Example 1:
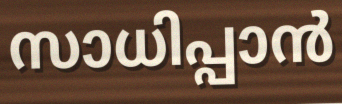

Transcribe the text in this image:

സാധിപ്പാൻ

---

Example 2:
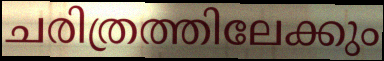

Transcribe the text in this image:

ചരിത്രത്തിലേക്കും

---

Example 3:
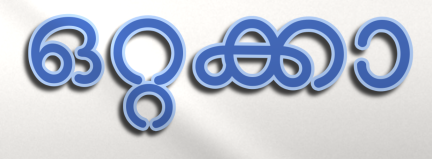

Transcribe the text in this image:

ഒറ്റക്കാ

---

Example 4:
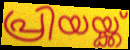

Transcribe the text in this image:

പ്രിയയ്ക്ക്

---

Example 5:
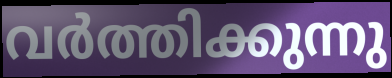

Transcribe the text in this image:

വർത്തിക്കുന്നു